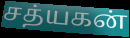
சத்யகன்